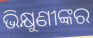
ଭିକ୍ଷୁଣୀଙ୍କର